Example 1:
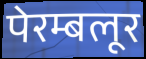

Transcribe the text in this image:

पेरम्बलूर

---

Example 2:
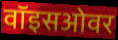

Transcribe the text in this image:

वॉइसओवर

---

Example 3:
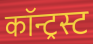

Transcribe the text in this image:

कॉन्ट्रस्ट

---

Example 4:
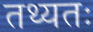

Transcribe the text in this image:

तथ्यतः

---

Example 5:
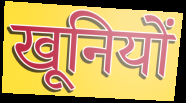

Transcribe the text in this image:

खूनियों